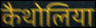
कैथोलिया